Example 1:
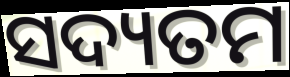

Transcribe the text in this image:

ସଦ୍ୟତମ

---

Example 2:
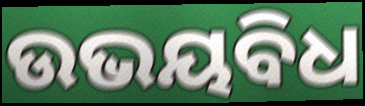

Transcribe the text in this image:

ଉଭୟବିଧ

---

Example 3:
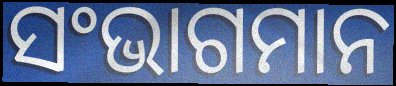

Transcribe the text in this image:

ସଂଭାଗମାନ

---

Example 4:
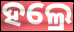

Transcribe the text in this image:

ହଲ୍ରେ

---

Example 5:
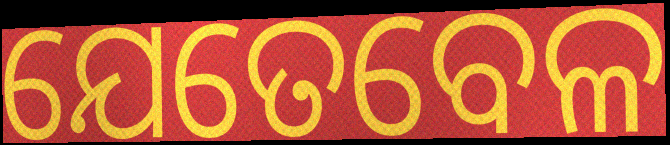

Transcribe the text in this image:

ଯେତେବେଳ